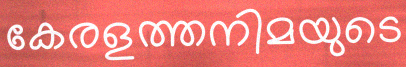
കേരളത്തനിമയുടെ